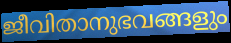
ജീവിതാനുഭവങ്ങളും